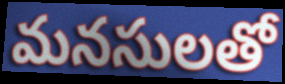
మనసులతో